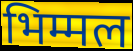
भिम्मल